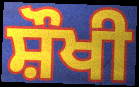
ਸ਼ੌਖੀ